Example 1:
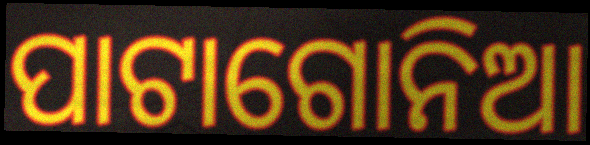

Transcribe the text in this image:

ପାଟାଗୋନିଆ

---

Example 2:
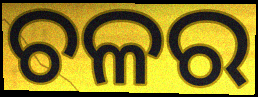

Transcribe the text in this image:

ଚଳର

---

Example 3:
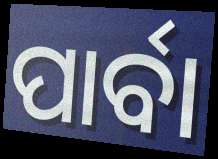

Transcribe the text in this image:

ପାର୍ବା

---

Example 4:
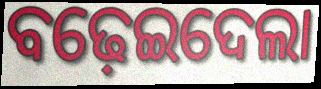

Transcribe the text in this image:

ବଢ଼େଇଦେଲା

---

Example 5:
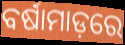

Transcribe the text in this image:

ବର୍ଷାମାଡ଼ରେ